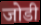
जोडी